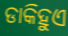
ଡାକିହୁଏ